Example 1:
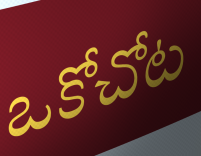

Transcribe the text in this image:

ఒకోచోట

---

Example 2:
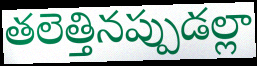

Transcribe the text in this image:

తలెత్తినప్పుడల్లా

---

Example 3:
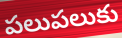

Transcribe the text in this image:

పలుపలుకు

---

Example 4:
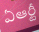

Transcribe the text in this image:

ఏఆర్టీ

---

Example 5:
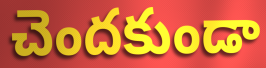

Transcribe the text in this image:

చెందకుండా